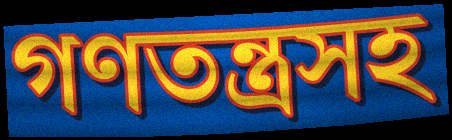
গণতন্ত্রসহ